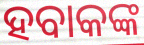
ହବାକଙ୍କ